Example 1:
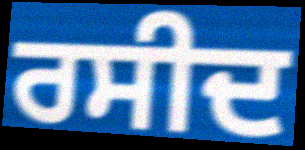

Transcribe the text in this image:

ਰਸੀਦ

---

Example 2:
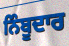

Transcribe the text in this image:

ਨਿੰਬੂਦਾਰ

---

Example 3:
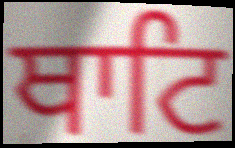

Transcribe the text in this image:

ਥਾਟਿ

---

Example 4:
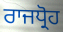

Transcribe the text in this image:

ਰਾਜਧ੍ਰੋਹ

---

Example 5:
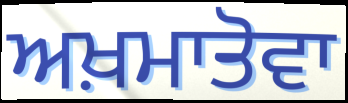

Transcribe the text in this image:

ਅਖ਼ਮਾਤੋਵਾ